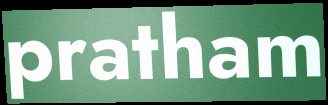
pratham